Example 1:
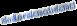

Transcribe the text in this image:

ಸಂತೋಷದಾಯಕವಾದ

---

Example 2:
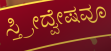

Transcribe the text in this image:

ಸ್ತ್ರೀದ್ವೇಷವೂ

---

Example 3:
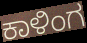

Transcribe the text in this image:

ಕಾಳಿಂಗ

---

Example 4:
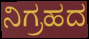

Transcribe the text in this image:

ನಿಗ್ರಹದ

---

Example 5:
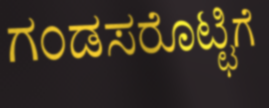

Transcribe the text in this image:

ಗಂಡಸರೊಟ್ಟಿಗೆ